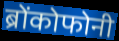
ब्रोंकोफोनी